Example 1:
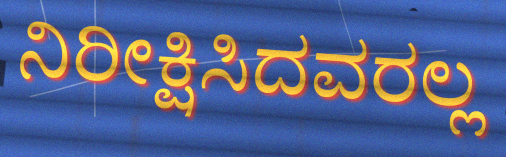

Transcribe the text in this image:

ನಿರೀಕ್ಷಿಸಿದವರಲ್ಲ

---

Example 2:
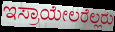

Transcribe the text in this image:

ಇಸ್ರಾಯೇಲರೆಲ್ಲರು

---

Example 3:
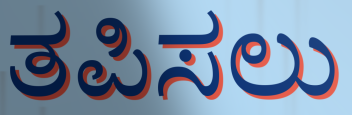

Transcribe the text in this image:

ತಪಿಸಲು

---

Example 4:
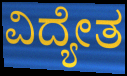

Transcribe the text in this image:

ವಿದ್ಯೇತ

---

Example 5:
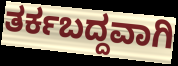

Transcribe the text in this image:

ತರ್ಕಬದ್ದವಾಗಿ